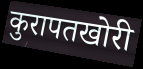
कुरापतखोरी